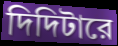
দিদিটারে